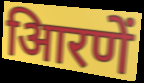
आिरणें